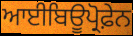
ਆਈਬਿਊਪ੍ਰੋਫ਼ੇਨ